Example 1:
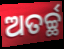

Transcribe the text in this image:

ଅତର୍ଚ୍ଛ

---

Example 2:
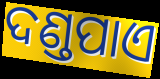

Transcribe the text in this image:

ଦଣ୍ଡପାଏ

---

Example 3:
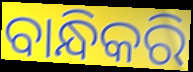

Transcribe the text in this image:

ବାନ୍ଧିକରି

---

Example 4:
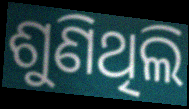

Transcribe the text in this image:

ଶୁଣିଥିଲି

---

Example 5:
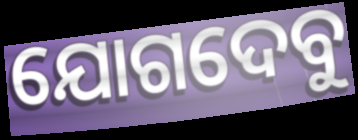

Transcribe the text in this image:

ଯୋଗଦେବୁ